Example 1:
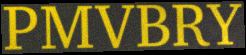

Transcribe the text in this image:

PMVBRY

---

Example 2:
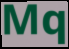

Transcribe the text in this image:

Mq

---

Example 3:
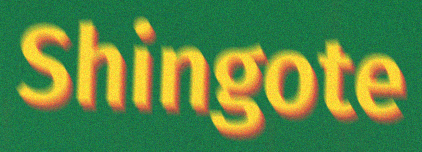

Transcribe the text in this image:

Shingote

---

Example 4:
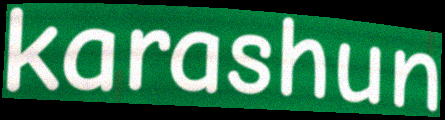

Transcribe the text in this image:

karashun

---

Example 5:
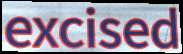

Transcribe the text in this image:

excised